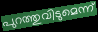
പുറത്തുവിടുമെന്ന്